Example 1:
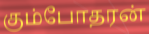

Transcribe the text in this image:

கும்போதரன்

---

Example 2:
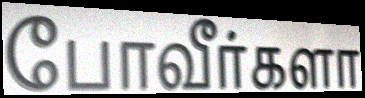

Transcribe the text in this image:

போவீர்களா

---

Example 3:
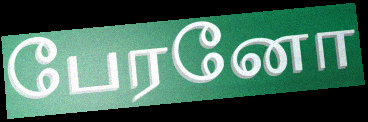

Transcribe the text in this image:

பேரனோ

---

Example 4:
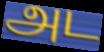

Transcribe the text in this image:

அட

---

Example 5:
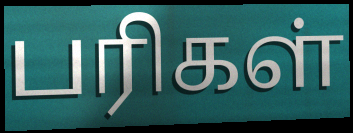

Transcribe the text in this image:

பரிகள்